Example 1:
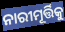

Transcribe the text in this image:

ନାରୀମୂର୍ତ୍ତିକୁ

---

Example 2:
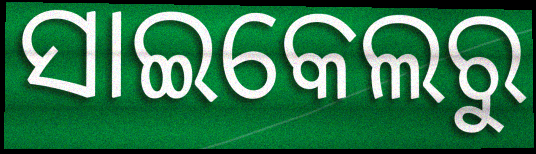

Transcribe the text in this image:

ସାଇକେଲରୁ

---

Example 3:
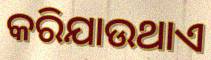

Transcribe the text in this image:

କରିଯାଉଥାଏ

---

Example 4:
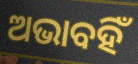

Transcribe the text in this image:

ଅଭାବହିଁ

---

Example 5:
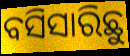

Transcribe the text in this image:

ବସିସାରିଛୁ